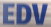
EDV